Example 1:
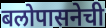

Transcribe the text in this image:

बलोपासनेची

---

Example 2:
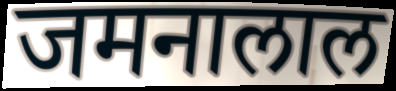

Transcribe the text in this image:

जमनालाल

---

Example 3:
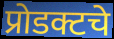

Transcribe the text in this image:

प्रोडक्टचे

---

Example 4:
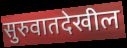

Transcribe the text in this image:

सुरुवातदेखील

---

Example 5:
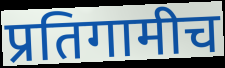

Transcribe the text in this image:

प्रतिगामीच